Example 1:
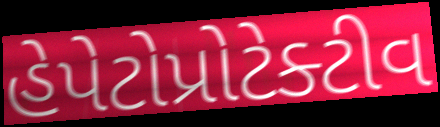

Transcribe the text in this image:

હેપેટોપ્રોટેક્ટીવ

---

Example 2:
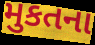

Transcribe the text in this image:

મુકતના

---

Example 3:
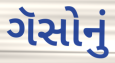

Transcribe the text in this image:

ગૅસોનું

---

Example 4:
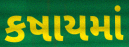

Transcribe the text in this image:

કષાયમાં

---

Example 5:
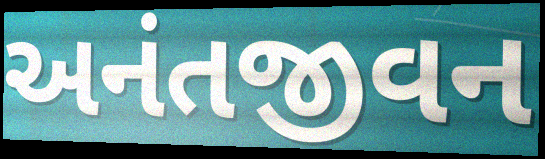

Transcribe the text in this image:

અનંતજીવન